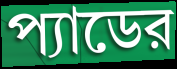
প্যাডের